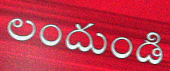
లందుండి